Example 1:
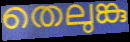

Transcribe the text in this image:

തെലുങ്കു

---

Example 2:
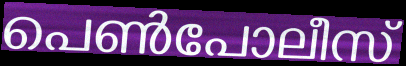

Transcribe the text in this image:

പെൺപോലീസ്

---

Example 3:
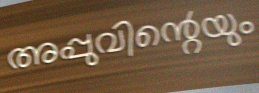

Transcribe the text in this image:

അപ്പുവിന്റെയും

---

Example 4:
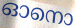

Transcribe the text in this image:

ഓനൊ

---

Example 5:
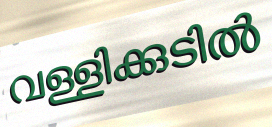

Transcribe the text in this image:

വള്ളിക്കുടിൽ